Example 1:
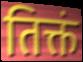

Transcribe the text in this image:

तिक्तं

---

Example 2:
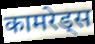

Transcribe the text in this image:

कामरेड्स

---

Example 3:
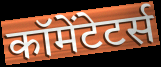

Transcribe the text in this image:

कॉमेंटेटर्स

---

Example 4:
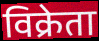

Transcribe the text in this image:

विक्रेता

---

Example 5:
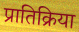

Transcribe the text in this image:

प्रातिक्रिया